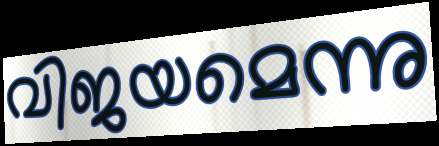
വിജയമെന്നു